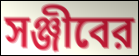
সঞ্জীবের